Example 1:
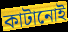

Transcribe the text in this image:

কাটানোই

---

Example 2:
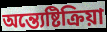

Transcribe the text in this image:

অন্ত্যেষ্টিক্রিয়া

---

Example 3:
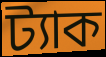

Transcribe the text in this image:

ট্যাক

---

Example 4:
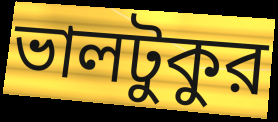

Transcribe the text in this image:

ভালটুকুর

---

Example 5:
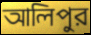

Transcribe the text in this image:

আলিপুর